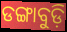
ଡଙ୍ଗାବୁଡ଼ି